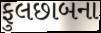
ફુલછાબના